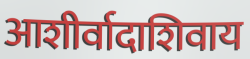
आशीर्वादाशिवाय